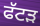
ਫੱਟੜ